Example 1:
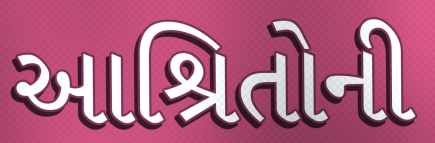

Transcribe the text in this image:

આશ્રિતોની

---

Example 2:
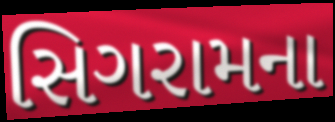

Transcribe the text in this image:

સિગરામના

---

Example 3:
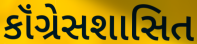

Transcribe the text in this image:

કૉંગ્રેસશાસિત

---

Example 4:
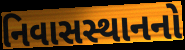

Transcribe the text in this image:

નિવાસસ્થાનનો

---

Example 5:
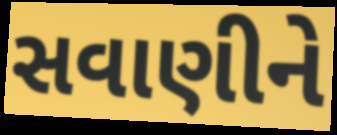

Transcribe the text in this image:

સવાણીને